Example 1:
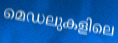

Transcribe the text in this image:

മെഡലുകളിലെ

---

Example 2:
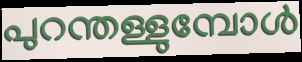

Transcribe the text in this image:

പുറന്തള്ളുമ്പോൾ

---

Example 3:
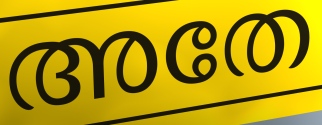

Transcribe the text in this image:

അതേ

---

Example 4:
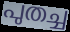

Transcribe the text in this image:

പുതച്ച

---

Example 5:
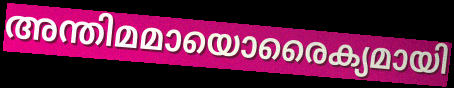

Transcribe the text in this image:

അന്തിമമായൊരൈക്യമായി